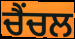
ਚੈਂਚਲ